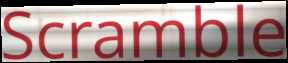
Scramble